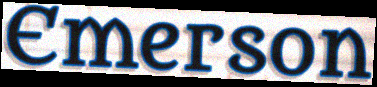
Emerson